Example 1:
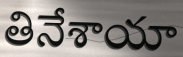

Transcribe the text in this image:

తినేశాయా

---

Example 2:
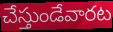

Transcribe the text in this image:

చేస్తుండేవారట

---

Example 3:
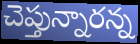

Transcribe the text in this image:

చెప్తున్నారన్న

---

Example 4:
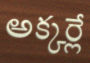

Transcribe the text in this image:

అక్కర్లే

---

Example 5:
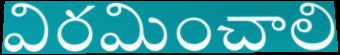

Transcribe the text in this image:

విరమించాలి